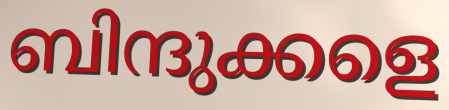
ബിന്ദുക്കളെ